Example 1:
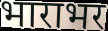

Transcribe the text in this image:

भाराभर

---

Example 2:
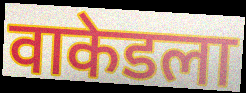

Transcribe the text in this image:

वाकेडला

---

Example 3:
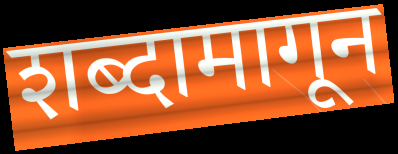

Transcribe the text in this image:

शब्दामागून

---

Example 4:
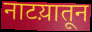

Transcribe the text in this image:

नाटय़ातून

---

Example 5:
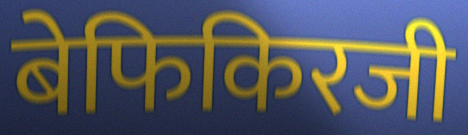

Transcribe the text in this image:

बेफिकिरजी